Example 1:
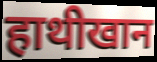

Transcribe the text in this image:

हाथीखान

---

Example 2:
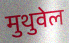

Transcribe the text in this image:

मुथुवेल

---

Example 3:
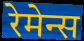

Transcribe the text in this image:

रेमेन्स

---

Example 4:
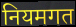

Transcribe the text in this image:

नियमगत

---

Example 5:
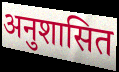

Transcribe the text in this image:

अनुशासित